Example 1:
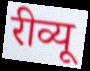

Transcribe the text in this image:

रीव्यू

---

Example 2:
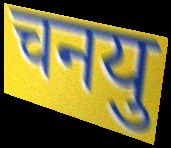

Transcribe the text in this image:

चनयु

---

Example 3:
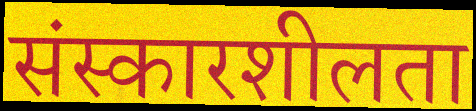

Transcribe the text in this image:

संस्कारशीलता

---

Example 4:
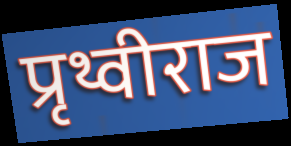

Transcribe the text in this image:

प्रृथ्वीराज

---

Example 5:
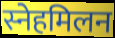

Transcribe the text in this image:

स्नेहमिलन